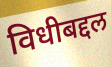
विधीबद्दल